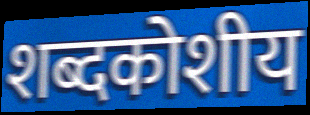
शब्दकोशीय